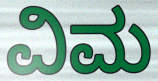
ವಿಮ